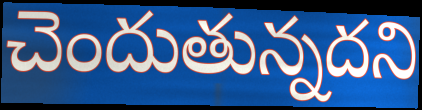
చెందుతున్నదని